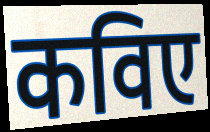
कविए